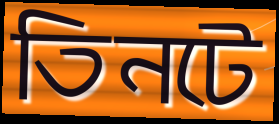
তিনটে